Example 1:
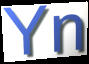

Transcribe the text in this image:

Yn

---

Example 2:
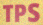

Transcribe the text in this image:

TPS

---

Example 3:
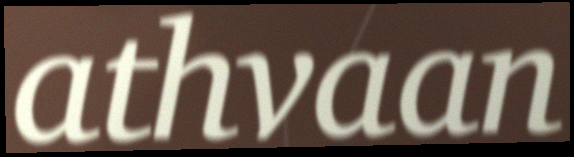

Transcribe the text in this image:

athvaan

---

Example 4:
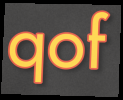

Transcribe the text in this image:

qof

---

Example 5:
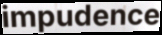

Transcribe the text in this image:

impudence